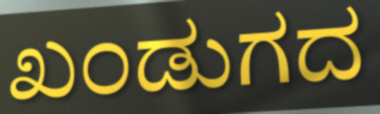
ಖಂಡುಗದ